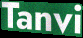
Tanvi